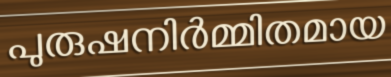
പുരുഷനിർമ്മിതമായ